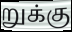
றுக்கு